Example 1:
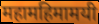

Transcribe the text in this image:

महामहिमामयी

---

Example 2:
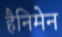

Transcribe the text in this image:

हैनिमेन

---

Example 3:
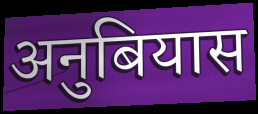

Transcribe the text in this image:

अनुबियास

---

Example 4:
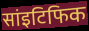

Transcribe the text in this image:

सांइटिफिक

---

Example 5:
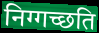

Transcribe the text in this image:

निग्गच्छति